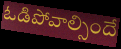
ఓడిపోవాల్సిందే